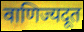
वाणिज्यदूत